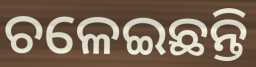
ଚଳେଇଛନ୍ତି